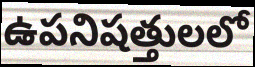
ఉపనిషత్తులలో